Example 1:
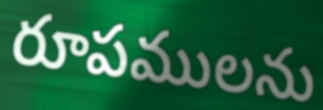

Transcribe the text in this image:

రూపములను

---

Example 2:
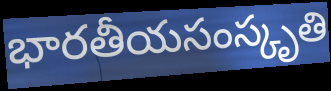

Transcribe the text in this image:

భారతీయసంస్కృతి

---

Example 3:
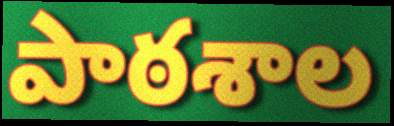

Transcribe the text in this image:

పాఠశాల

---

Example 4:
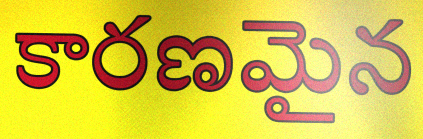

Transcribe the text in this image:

కారణమైన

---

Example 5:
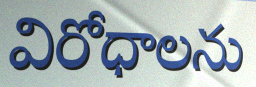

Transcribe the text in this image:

విరోధాలను